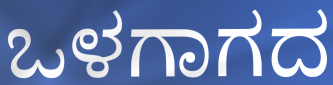
ಒಳಗಾಗದ